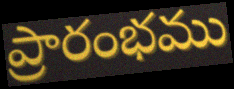
ప్రారంభము